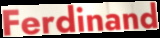
Ferdinand